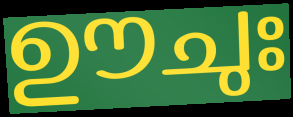
ഊചുഃ